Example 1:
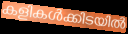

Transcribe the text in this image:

കളികൾക്കിടയിൽ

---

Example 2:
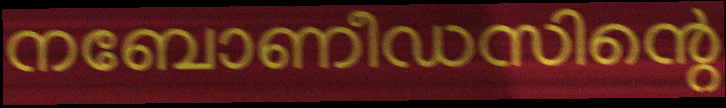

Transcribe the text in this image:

നബോണീഡസിന്റെ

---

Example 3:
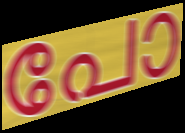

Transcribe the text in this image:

പോ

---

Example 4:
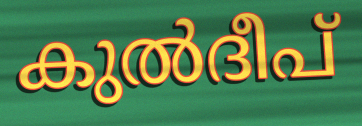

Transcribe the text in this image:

കുൽദീപ്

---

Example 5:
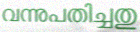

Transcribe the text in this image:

വന്നുപതിച്ചതു